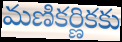
మణికర్ణికకు